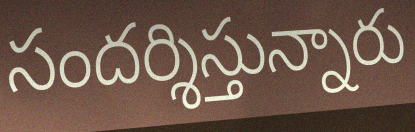
సందర్శిస్తున్నారు